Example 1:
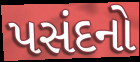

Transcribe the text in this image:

પસંદનો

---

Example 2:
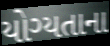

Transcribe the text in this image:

યોગ્યતાના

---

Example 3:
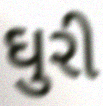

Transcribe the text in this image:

ઘુરી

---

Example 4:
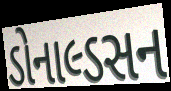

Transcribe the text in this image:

ડોનાલ્ડસન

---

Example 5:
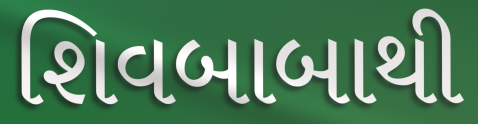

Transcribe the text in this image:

શિવબાબાથી